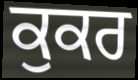
ਕੁਕਰ